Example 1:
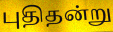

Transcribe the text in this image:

புதிதன்று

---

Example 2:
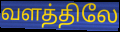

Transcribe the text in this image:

வளத்திலே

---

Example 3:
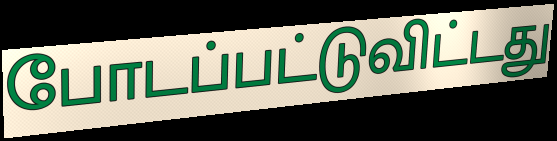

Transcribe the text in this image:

போடப்பட்டுவிட்டது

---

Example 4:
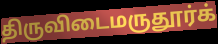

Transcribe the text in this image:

திருவிடைமருதூர்க்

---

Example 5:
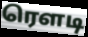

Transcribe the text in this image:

ரெளடி